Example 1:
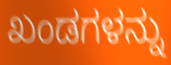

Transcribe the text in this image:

ಖಂಡಗಳನ್ನು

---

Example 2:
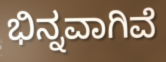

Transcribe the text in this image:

ಭಿನ್ನವಾಗಿವೆ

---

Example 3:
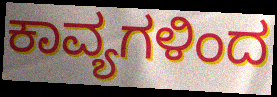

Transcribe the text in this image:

ಕಾವ್ಯಗಳಿಂದ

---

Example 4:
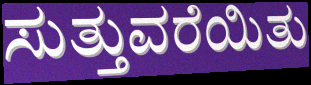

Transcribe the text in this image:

ಸುತ್ತುವರೆಯಿತು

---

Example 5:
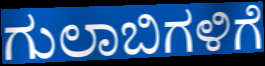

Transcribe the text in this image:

ಗುಲಾಬಿಗಳಿಗೆ